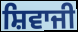
ਸ਼ਿਵਾਜੀ